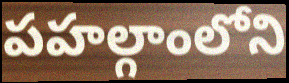
పహల్గాంలోని